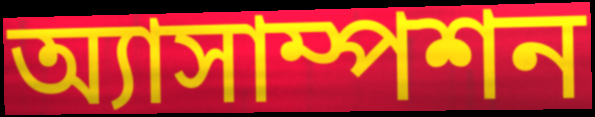
অ্যাসাম্পশন